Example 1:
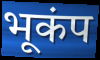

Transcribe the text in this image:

भूकंप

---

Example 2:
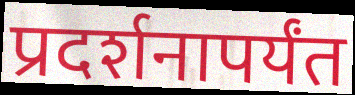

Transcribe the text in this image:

प्रदर्शनापर्यंत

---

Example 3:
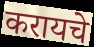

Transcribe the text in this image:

करायचे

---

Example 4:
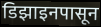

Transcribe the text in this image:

डिझाइनपासून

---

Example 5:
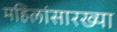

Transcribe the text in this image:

महिलांसारख्या